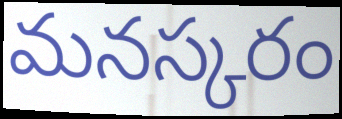
మనస్కరం